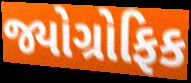
જ્યોગ્રોફિક